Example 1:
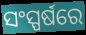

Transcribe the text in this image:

ସଂସ୍ପର୍ଷରେ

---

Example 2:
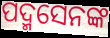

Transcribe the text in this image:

ପଦ୍ମସେନଙ୍କ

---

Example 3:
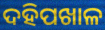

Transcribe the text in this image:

ଦହିପଖାଳ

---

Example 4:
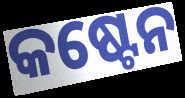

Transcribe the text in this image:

କଷ୍ଟେନ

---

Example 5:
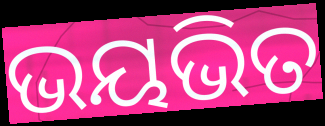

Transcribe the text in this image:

ଭୟଭିତ